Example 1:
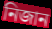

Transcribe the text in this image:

নিজান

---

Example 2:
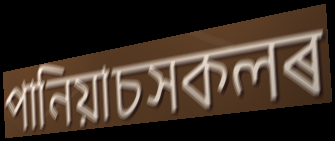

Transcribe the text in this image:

পানিয়াচসকলৰ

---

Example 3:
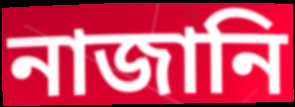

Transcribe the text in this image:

নাজানি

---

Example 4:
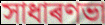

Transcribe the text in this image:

সাধাৰণভা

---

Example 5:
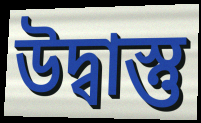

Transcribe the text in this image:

উদ্বাস্তু